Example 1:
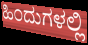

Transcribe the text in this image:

ಹಿಂದುಗಳಲ್ಲಿ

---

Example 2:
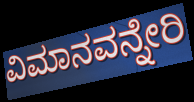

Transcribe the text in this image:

ವಿಮಾನವನ್ನೇರಿ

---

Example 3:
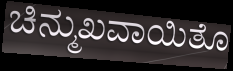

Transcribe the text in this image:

ಚಿನ್ಮುಖವಾಯಿತೊ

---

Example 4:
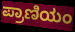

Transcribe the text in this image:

ಪ್ರಾಣಿಯಂ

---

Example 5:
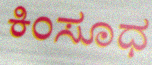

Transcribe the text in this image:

ಕಿಂಸೂಧ